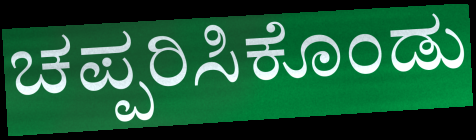
ಚಪ್ಪರಿಸಿಕೊಂಡು